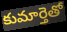
కుమార్తెతో